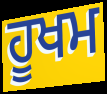
ਹੂਖਮ